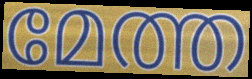
മേത്ത